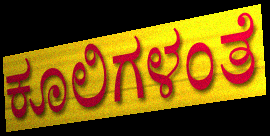
ಕೂಲಿಗಳಂತೆ